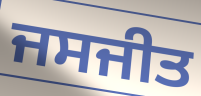
ਜਸਜੀਤ